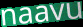
naavu